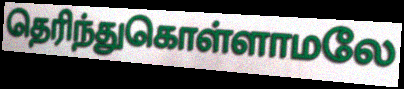
தெரிந்துகொள்ளாமலே